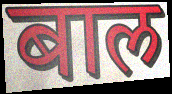
बाल